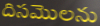
దిసమొలను